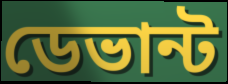
ডেভান্ট